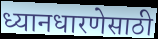
ध्यानधारणेसाठी